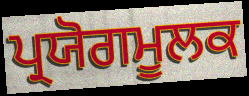
ਪ੍ਰਯੋਗਮੂਲਕ